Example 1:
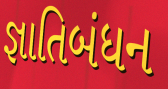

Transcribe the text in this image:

જ્ઞાતિબંધન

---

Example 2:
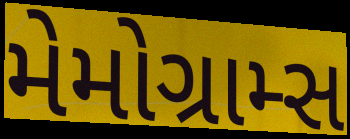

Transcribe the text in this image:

મેમોગ્રામ્સ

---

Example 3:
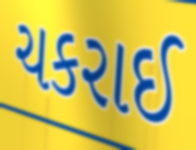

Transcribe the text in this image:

ચકરાઈ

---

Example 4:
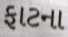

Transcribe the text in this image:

ફાટના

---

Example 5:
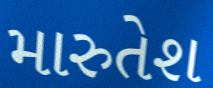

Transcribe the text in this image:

મારુતેશ